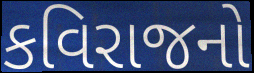
કવિરાજનો